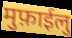
मुफ़ाईलु